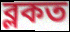
ব্লকত